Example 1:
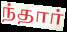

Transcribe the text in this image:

ந்தார்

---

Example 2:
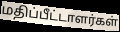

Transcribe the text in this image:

மதிப்பீட்டாளர்கள்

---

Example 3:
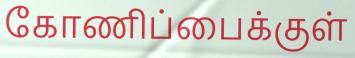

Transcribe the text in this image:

கோணிப்பைக்குள்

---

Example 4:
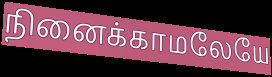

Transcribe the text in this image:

நினைக்காமலேயே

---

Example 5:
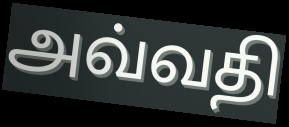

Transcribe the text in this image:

அவ்வதி